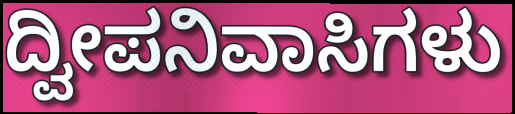
ದ್ವೀಪನಿವಾಸಿಗಳು